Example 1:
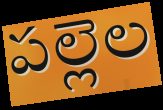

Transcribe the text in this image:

పల్లెల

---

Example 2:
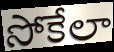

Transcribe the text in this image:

సోకేలా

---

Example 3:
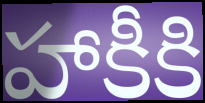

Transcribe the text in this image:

హాకీకి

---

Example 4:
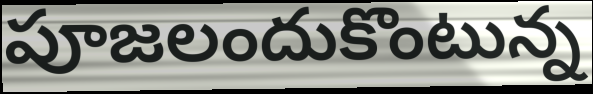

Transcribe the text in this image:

పూజలందుకొంటున్న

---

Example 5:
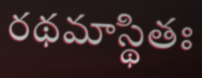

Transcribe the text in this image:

రథమాస్థితః